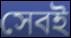
সেবই